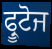
ਫ੍ਰੂਟੋਜ